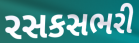
રસકસભરી